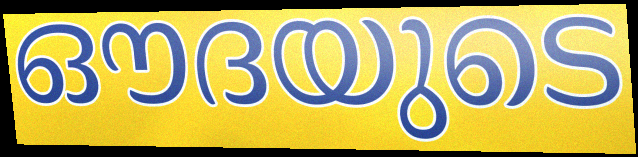
ഔദയുടെ